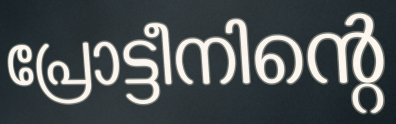
പ്രോട്ടീനിന്റെ